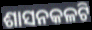
ଶାସନକଳଟି